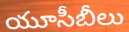
యూసీబీలు